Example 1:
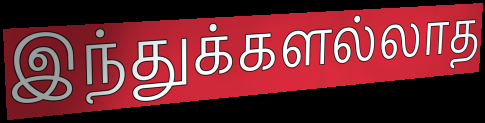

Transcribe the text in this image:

இந்துக்களல்லாத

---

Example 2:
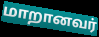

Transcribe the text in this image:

மாறானவர்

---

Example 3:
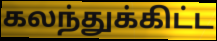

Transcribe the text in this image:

கலந்துக்கிட்ட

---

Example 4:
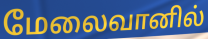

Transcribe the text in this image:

மேலைவானில்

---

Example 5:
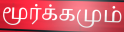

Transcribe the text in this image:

மூர்க்கமும்